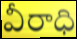
వీరాధి